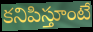
కనిపిస్తూంటే